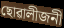
ছোৱালীজনী